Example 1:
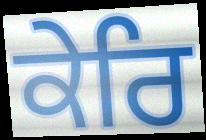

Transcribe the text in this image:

ਕੇਰਿ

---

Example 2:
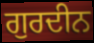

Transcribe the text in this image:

ਗੁਰਦੀਨ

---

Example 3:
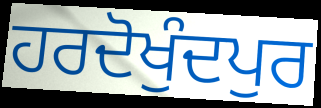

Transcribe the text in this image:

ਹਰਦੋਖੁੰਦਪੁਰ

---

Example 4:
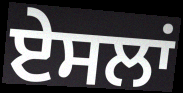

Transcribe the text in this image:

ਏਸਲਾਂ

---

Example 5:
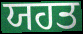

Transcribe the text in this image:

ਯਹਤ